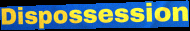
Dispossession